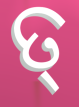
ତ୍